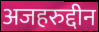
अजहरुद्दीन